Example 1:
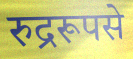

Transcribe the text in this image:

रुद्ररूपसे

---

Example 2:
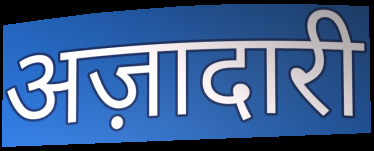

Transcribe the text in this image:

अज़ादारी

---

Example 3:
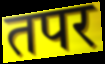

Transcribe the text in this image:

तपर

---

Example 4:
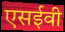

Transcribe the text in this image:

एसईवी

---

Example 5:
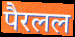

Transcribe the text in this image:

पैरलल